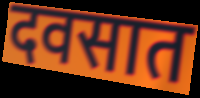
दवसात